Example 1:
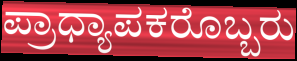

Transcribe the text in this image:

ಪ್ರಾಧ್ಯಾಪಕರೊಬ್ಬರು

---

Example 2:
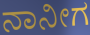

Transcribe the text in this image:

ನಾನೀಗ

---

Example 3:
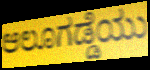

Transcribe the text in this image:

ಆಲೂಗಡ್ಡೆಯು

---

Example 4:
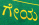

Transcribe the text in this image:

ಗೇಯ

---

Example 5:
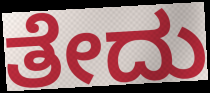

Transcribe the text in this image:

ತೇದು